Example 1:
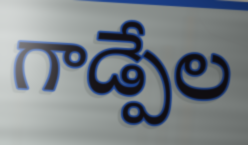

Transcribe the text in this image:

గాడ్పేల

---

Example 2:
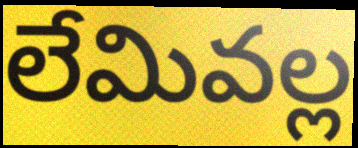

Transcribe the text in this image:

లేమివల్ల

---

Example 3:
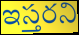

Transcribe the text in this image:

ఇస్తరని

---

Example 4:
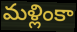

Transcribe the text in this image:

మళ్లింకా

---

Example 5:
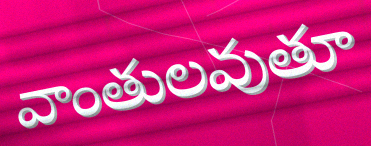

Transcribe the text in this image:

వాంతులవుతూ